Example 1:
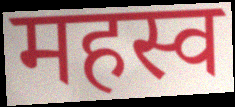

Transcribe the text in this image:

महस्व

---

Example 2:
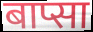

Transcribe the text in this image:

बाप्सा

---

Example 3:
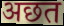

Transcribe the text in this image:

अछत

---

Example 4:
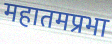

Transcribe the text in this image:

महातमप्रभा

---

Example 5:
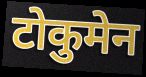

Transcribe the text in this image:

टोकुमेन